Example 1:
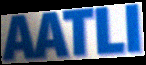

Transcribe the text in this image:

AATLI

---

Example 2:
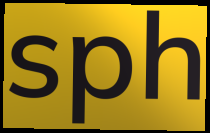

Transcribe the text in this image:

sph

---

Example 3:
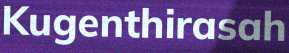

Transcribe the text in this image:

Kugenthirasah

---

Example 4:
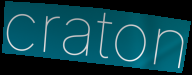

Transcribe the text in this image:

craton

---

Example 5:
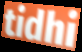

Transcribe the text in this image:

tidhi